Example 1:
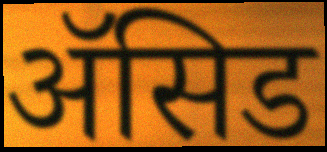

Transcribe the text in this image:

ॲसिड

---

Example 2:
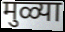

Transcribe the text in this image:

मुळ्या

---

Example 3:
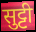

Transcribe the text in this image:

सुट्टी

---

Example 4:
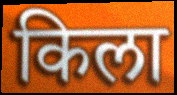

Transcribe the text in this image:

किला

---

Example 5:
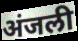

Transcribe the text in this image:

अंजली